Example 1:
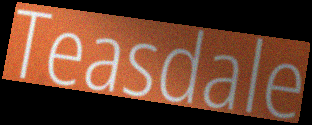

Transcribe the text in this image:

Teasdale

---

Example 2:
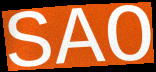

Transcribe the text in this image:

SAO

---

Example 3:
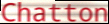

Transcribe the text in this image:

Chatton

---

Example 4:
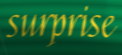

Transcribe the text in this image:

surprise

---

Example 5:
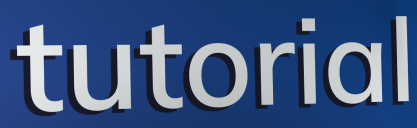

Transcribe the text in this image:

tutorial